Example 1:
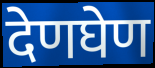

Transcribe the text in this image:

देणघेण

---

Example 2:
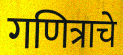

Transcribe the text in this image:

गणित्राचे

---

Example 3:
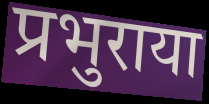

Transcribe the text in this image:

प्रभुराया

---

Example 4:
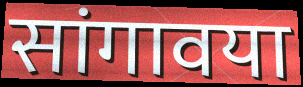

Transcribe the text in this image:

सांगावया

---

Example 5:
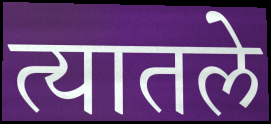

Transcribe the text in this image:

त्‍यातले